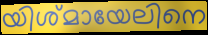
യിശ്മായേലിനെ